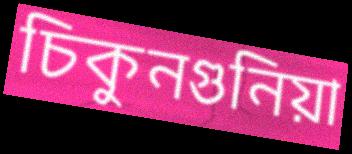
চিকুনগুনিয়া